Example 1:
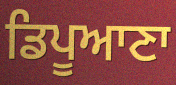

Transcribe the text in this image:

ਡਿਪੂਆਣਾ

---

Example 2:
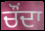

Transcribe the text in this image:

ਚੌਂਦਾ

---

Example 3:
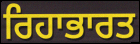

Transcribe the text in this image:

ਰਿਹਾਭਾਰਤ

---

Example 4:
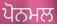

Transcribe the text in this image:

ਪੋਨਮਲ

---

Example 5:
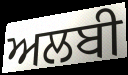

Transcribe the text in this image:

ਅਲਬੀ